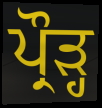
ਪ੍ਰੌੜ੍ਹ